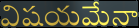
విషయమేనా